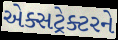
એક્સટ્રેક્ટરને